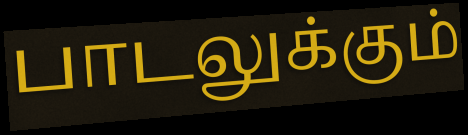
பாடலுக்கும்